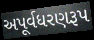
અપૂર્વધરણરૂપ